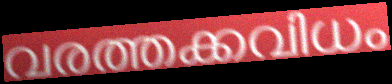
വരത്തക്കവിധം